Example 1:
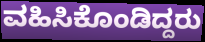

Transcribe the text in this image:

ವಹಿಸಿಕೊಂಡಿದ್ದರು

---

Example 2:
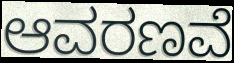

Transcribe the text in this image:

ಆವರಣವೆ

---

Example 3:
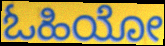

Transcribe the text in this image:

ಓಹಿಯೋ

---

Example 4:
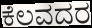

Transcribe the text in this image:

ಕೆಲವದರ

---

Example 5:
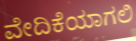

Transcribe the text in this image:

ವೇದಿಕೆಯಾಗಲಿ